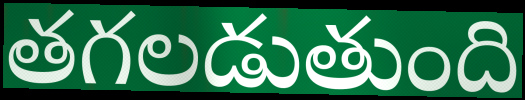
తగలడుతుంది